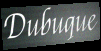
Dubuque